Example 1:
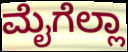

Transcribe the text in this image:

ಮೈಗೆಲ್ಲಾ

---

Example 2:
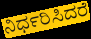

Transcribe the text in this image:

ನಿರ್ಧರಿಸಿದರೆ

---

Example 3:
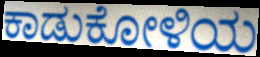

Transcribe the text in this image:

ಕಾಡುಕೋಳಿಯ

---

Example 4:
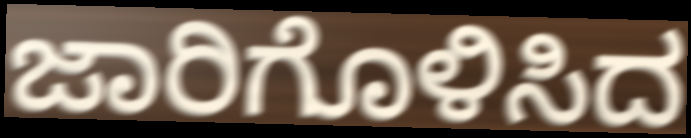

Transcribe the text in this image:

ಜಾರಿಗೊಳಿಸಿದ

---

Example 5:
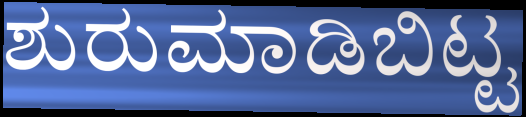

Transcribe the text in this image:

ಶುರುಮಾಡಿಬಿಟ್ಟ